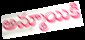
అమ్మాయికి